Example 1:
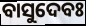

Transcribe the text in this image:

ବାସୁଦେବଃ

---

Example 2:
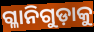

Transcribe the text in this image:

ଗ୍ଳାନିଗୁଡ଼ାକୁ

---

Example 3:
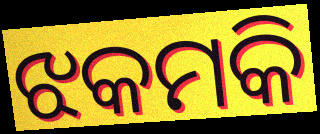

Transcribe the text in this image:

ଝକମକି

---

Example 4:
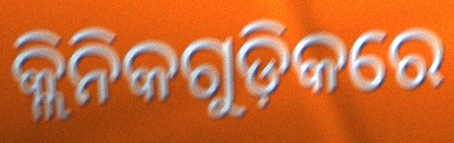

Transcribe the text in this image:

କ୍ଲିନିକଗୁଡ଼ିକରେ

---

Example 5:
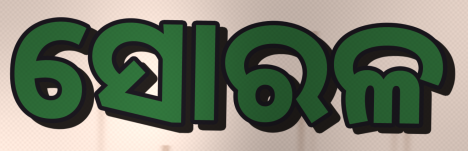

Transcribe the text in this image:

ସୋରଳ